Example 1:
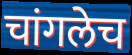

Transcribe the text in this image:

चांगलेच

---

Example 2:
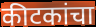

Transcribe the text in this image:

कीटकांचा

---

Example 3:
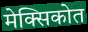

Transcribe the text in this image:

मेक्सिकोत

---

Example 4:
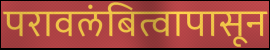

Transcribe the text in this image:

परावलंबित्वापासून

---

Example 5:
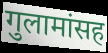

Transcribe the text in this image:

गुलामांसह